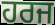
ਹਰਜ